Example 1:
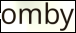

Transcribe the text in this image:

omby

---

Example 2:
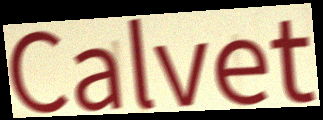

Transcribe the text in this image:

Calvet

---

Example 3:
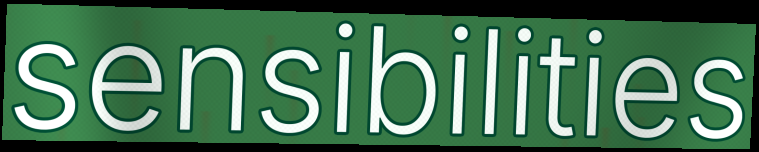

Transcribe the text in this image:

sensibilities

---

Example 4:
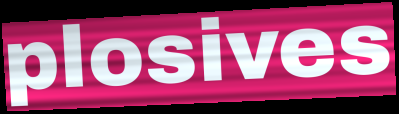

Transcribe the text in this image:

plosives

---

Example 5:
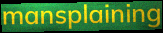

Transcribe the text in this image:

mansplaining